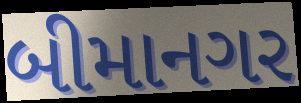
બીમાનગર